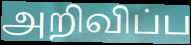
அறிவிப்ப